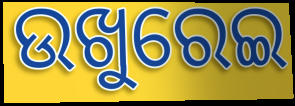
ଉଖୁରେଇ